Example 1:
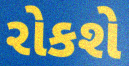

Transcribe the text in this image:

રોકશે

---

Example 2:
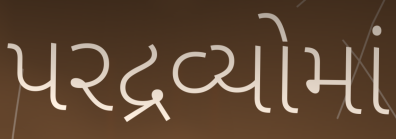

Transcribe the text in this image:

પરદ્રવ્યોમાં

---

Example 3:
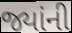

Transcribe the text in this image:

જ્યાંની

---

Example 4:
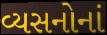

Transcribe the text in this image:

વ્યસનોનાં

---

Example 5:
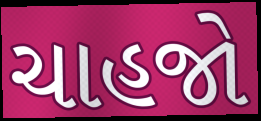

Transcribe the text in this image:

ચાહજો